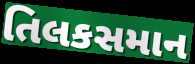
તિલકસમાન